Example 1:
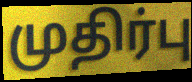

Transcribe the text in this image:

முதிர்பு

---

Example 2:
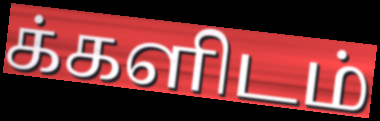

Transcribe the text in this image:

க்களிடம்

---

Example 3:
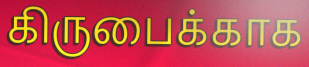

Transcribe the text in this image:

கிருபைக்காக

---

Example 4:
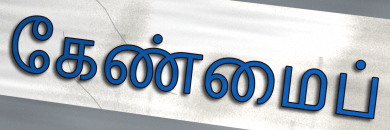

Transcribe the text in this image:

கேண்மைப்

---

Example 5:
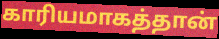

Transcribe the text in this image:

காரியமாகத்தான்